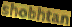
shobhtan